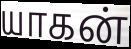
யாகன்